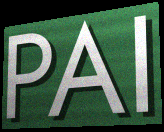
PAI